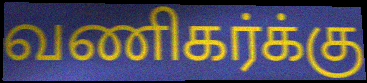
வணிகர்க்கு